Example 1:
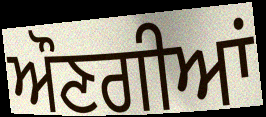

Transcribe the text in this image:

ਔਣਗੀਆਂ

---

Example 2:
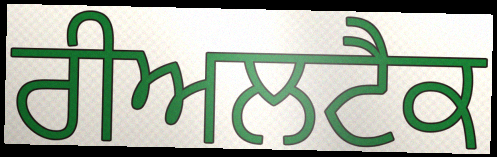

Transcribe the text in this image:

ਰੀਅਲਟੈਕ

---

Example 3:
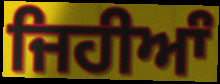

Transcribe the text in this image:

ਜਿਹੀਆੰ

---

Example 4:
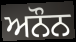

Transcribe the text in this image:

ਅਨੌਨ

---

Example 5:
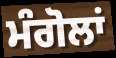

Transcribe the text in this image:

ਮੰਗੋਲਾਂ